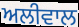
ਅਲੀਵਾਲ